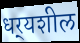
धर्यशील